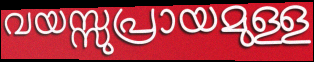
വയസ്സുപ്രായമുള്ള